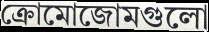
ক্রোমোজোমগুলো